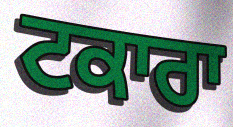
ਟਕਾਰਾ